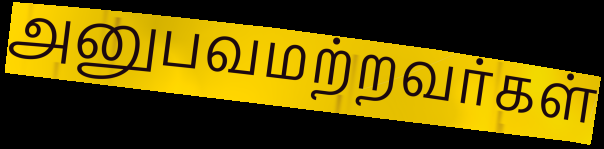
அனுபவமற்றவர்கள்